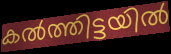
കൽത്തിട്ടയിൽ